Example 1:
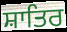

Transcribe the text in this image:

ਸ਼ਾਤਿਰ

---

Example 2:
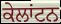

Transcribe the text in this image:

ਕੇਲਾਂਟਨ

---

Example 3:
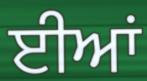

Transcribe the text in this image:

ਈਆਂ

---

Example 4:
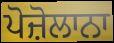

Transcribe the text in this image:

ਪੋਜ਼ੋਲਾਨਾ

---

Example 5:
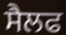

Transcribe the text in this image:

ਸੈਲਫ